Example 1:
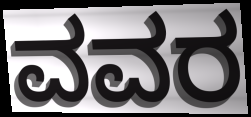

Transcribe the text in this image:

ವವರ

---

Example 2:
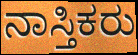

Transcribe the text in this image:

ನಾಸ್ತಿಕರು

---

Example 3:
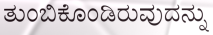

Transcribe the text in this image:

ತುಂಬಿಕೊಂಡಿರುವುದನ್ನು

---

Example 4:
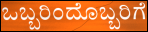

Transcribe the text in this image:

ಒಬ್ಬರಿಂದೊಬ್ಬರಿಗೆ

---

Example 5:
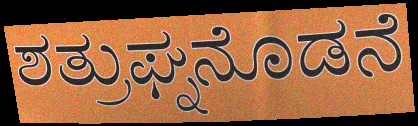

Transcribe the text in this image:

ಶತ್ರುಘ್ನನೊಡನೆ